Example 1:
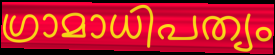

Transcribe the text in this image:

ഗ്രാമാധിപത്യം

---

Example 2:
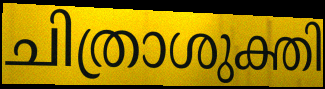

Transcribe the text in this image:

ചിത്രാശുക്തി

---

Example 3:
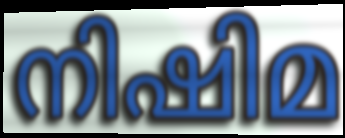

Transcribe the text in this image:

നിഷിമ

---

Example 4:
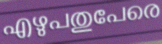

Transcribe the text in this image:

എഴുപതുപേരെ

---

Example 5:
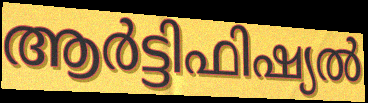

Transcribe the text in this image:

ആർട്ടിഫിഷ്യൽ